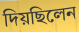
দিয়ছিলেন